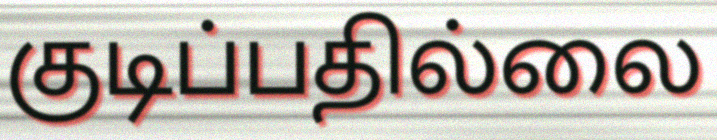
குடிப்பதில்லை